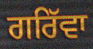
ਗਰਿੱਵਾ